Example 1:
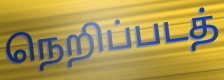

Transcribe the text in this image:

நெறிப்படத்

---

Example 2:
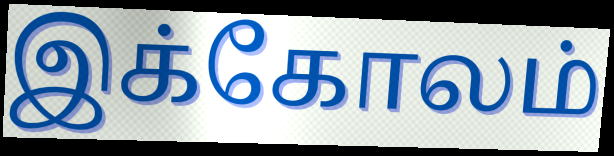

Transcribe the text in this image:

இக்கோலம்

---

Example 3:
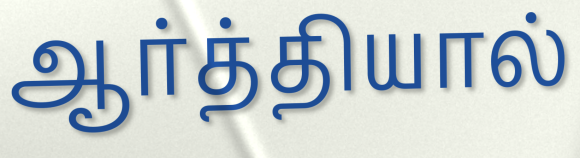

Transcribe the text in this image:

ஆர்த்தியால்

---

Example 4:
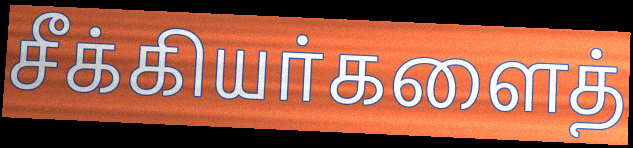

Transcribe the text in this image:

சீக்கியர்களைத்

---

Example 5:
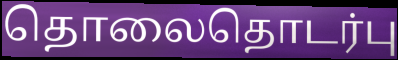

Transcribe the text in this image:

தொலைதொடர்பு